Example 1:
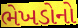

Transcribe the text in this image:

ભેખડોનો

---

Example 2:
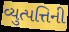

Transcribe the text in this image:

વ્યુત્પત્તિની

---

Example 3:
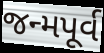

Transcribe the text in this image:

જન્મપૂર્વ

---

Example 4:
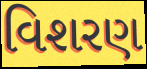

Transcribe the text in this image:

વિશરણ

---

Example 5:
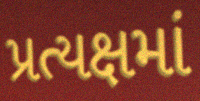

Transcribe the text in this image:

પ્રત્‍યક્ષમાં